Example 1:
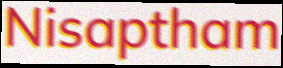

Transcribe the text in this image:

Nisaptham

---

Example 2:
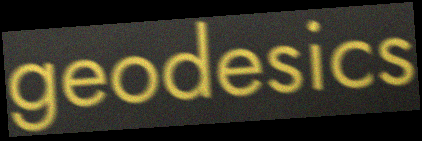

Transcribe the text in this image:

geodesics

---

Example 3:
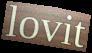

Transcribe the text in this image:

lovit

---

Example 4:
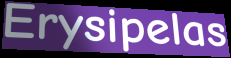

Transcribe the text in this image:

Erysipelas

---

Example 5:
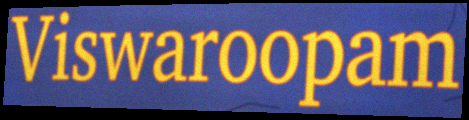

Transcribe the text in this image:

Viswaroopam